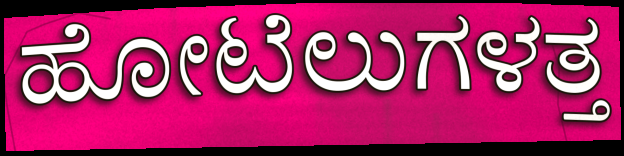
ಹೋಟೆಲುಗಳತ್ತ